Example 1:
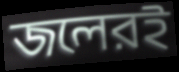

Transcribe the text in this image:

জলেরই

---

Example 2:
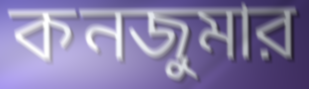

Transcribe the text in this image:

কনজুমার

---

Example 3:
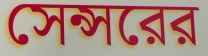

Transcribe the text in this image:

সেন্সরের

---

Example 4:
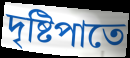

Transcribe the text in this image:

দৃষ্টিপাতে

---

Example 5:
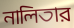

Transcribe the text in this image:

নালিতার